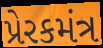
પ્રેરકમંત્ર